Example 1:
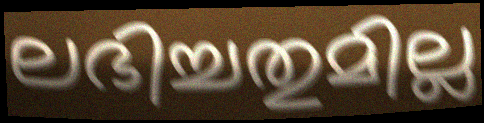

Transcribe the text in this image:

ലഭിച്ചതുമില്ല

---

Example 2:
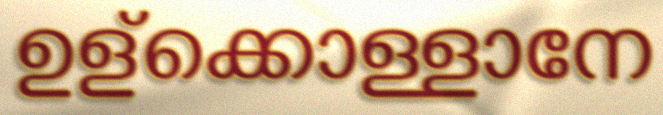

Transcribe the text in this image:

ഉള്ക്കൊള്ളാനേ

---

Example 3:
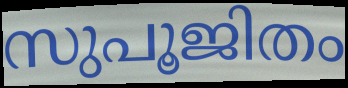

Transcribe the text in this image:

സുപൂജിതം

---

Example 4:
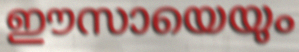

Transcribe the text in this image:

ഈസായെയും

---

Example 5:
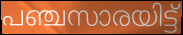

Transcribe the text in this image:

പഞ്ചസാരയിട്ട്